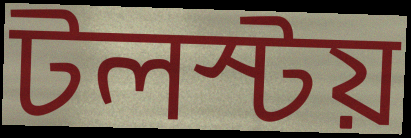
টলস্টয়